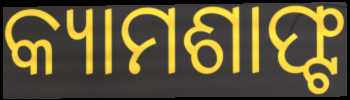
କ୍ୟାମଶାଫ୍ଟ